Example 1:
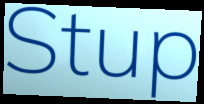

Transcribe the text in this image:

Stup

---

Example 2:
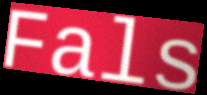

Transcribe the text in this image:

Fals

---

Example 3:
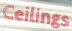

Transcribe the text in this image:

Ceilings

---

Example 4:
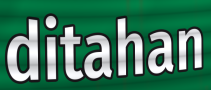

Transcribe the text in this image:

ditahan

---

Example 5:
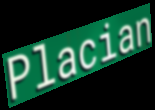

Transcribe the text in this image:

Placian